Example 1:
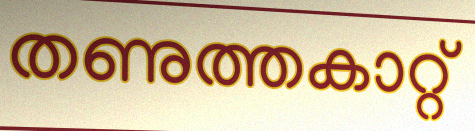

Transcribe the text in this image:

തണുത്തകാറ്റ്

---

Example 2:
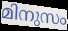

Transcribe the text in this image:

മിനുസം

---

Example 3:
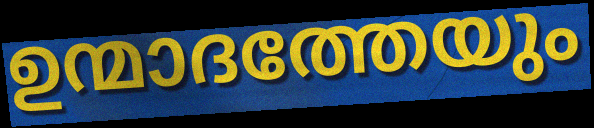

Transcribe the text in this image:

ഉന്മാദത്തേയും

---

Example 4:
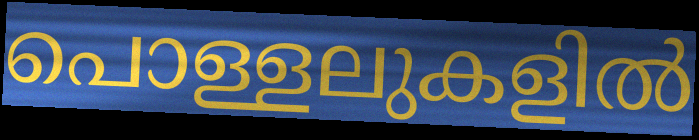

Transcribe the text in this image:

പൊള്ളലുകളിൽ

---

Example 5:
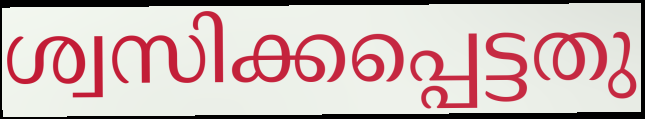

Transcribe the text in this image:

ശ്വസിക്കപ്പെട്ടതു